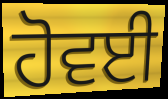
ਹੋਵਈ